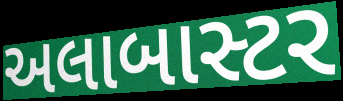
અલાબાસ્ટર